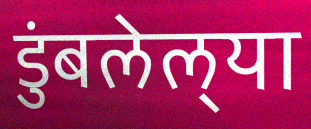
डुंबलेल्या